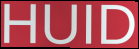
HUID